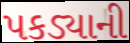
પકડ્યાની